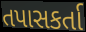
તપાસકર્તા